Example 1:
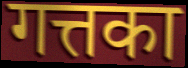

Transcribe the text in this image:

गत्तका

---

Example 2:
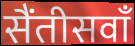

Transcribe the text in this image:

सैंतीसवाँ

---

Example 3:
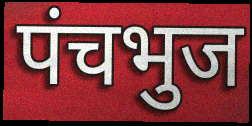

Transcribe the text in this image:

पंचभुज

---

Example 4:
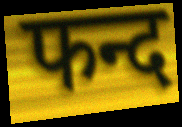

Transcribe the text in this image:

फन्द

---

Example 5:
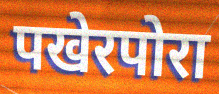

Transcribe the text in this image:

पखेरपोरा